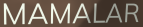
MAMALAR